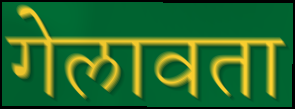
गेलावता